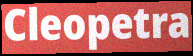
Cleopetra